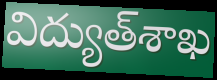
విద్యుత్‌శాఖ